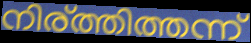
നിര്ത്തിത്തന്ന്